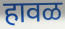
हावळ